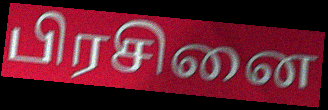
பிரசினை